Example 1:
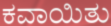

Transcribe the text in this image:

ಕವಾಯಿತು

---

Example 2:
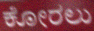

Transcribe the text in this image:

ಕೋರಲು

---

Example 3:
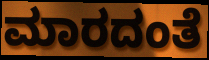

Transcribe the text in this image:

ಮಾರದಂತೆ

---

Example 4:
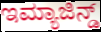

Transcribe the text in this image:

ಇಮ್ಯಾಜಿನ್ಡ್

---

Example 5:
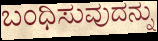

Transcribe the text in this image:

ಬಂಧಿಸುವುದನ್ನು